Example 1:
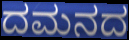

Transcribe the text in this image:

ದಮನದ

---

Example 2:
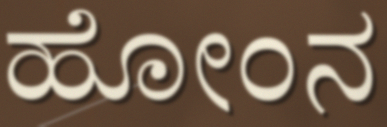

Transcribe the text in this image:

ಹೋಂನ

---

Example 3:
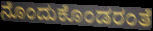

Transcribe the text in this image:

ನೊಂದುಕೊಂಡರಂತೆ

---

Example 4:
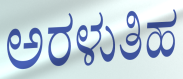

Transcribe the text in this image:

ಅರಳುತಿಹ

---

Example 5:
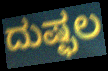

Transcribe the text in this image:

ದುಷ್ಫಲ